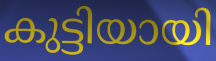
കുട്ടിയായി